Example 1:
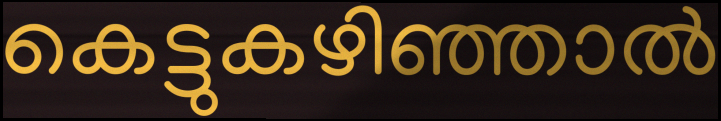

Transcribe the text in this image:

കെട്ടുകഴിഞ്ഞാൽ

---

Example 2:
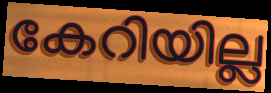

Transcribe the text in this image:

കേറിയില്ല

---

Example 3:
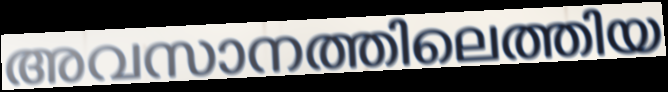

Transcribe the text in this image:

അവസാനത്തിലെത്തിയ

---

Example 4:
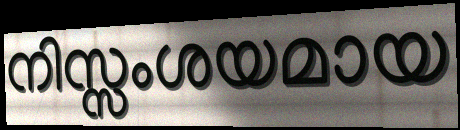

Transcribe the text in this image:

നിസ്സംശയമായ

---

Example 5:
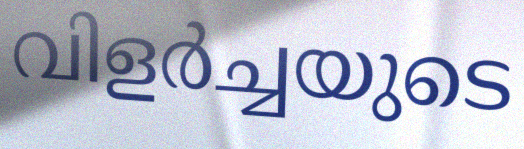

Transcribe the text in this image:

വിളർച്ചയുടെ